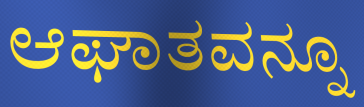
ಆಘಾತವನ್ನೂ